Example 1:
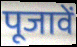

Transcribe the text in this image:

पूजावें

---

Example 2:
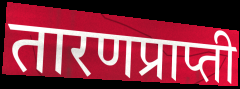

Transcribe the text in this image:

तारणप्राप्ती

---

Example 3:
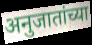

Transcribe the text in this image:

अनुजातांच्या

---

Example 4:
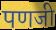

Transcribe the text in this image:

पणजी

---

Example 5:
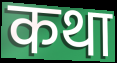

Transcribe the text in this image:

कथा